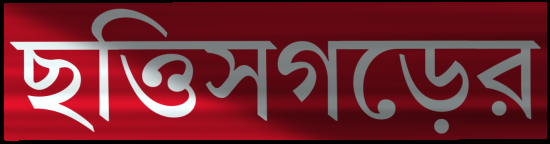
ছত্তিসগড়ের